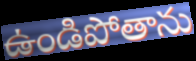
ఉండిపోతాను